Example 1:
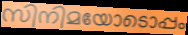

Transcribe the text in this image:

സിനിമയോടൊപ്പം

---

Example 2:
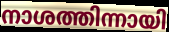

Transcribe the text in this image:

നാശത്തിന്നായി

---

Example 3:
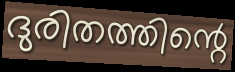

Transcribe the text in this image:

ദുരിതത്തിന്റെ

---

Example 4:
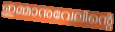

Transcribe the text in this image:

ഇമ്മാനുവേലിന്റെ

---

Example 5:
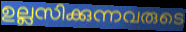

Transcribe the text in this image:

ഉല്ലസിക്കുന്നവരുടെ